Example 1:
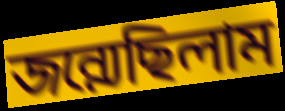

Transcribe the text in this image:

জন্মেছিলাম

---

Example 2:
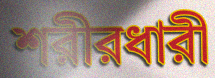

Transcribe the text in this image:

শরীরধারী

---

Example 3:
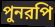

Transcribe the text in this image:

পুনরপি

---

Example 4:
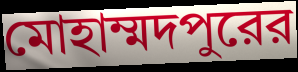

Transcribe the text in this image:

মোহাম্মদপুরের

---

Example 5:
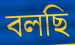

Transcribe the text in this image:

বলছি